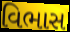
વિભાસ